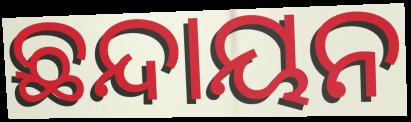
ଛନ୍ଦାୟନ